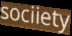
sociiety